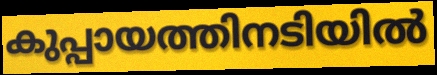
കുപ്പായത്തിനടിയിൽ